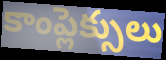
కాంప్లెక్సులు